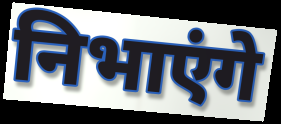
निभाएंगे